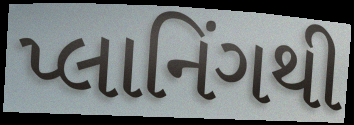
પ્લાનિંગથી